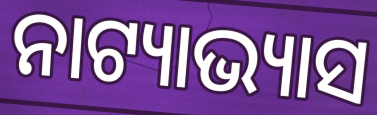
ନାଟ୍ୟାଭ୍ୟାସ